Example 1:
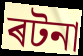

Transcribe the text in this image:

ৰটনা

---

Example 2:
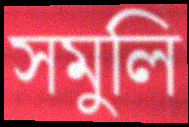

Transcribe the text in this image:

সমুলি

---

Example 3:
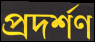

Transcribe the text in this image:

প্ৰদৰ্শণ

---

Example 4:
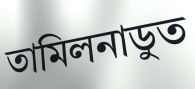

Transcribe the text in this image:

তামিলনাডুত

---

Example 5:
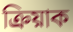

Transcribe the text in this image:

ক্ৰিয়াক